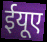
ईयूए